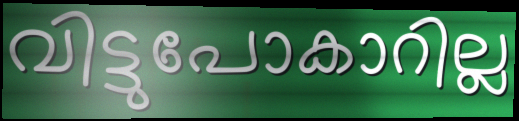
വിട്ടുപോകാറില്ല